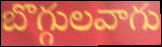
బొగ్గులవాగు